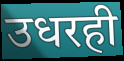
उधरही